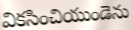
వికసించియుండెను